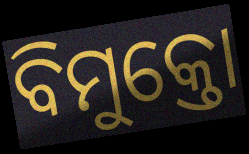
ବିମୁକ୍ତୋ